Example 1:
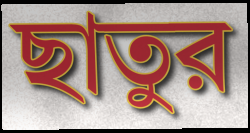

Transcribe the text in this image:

ছাতুর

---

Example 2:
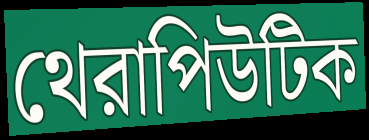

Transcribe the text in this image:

থেরাপিউটিক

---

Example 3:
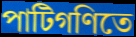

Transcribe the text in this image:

পাটিগণিতে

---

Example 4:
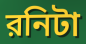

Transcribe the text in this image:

রনিটা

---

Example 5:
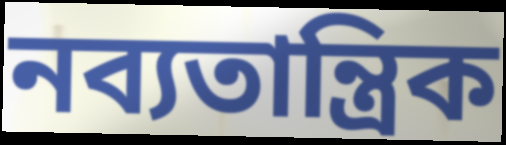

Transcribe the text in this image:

নব্যতান্ত্রিক